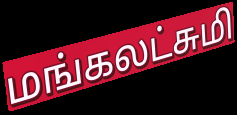
மங்கலட்சுமி